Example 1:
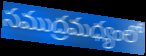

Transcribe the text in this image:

సముద్రమధ్యంలో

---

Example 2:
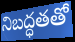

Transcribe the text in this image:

నిబద్ధతతో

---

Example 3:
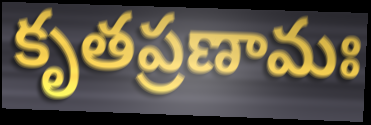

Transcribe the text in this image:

కృతప్రణామః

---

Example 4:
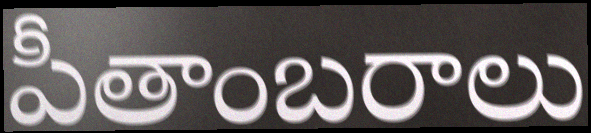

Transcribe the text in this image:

పీతాంబరాలు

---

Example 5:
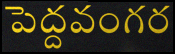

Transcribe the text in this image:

పెద్దవంగర